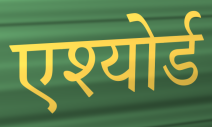
एश्योर्ड